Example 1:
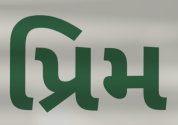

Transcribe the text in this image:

પ્રિમ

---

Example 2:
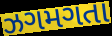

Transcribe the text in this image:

ઝગમગતા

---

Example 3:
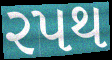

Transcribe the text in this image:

રપથ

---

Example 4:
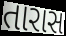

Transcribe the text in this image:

તારાસ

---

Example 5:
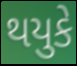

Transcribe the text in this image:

થયુકે